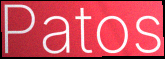
Patos